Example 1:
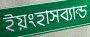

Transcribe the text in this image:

ইয়ংহাসব্যান্ড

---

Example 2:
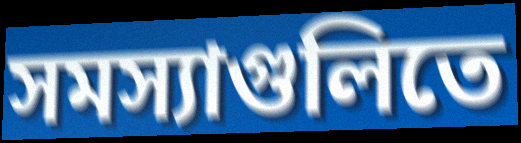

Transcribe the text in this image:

সমস্যাগুলিতে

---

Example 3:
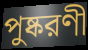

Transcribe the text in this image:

পুষ্করণী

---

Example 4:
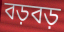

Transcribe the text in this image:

বড়বড়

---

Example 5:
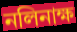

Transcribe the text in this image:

নলিনাক্ষ